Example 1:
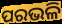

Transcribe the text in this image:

ପରଭଳି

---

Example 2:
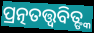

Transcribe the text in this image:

ପ୍ରତ୍ନତତ୍ତ୍ୱବିତ୍ଙ୍କ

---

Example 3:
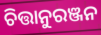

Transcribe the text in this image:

ଚିତ୍ତାନୁରଞ୍ଜନ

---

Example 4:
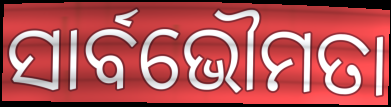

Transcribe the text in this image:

ସାର୍ବଭୌମତା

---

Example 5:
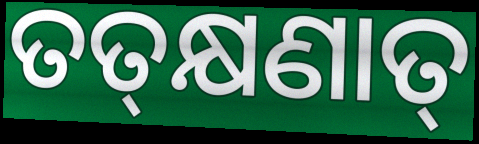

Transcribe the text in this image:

ତତ୍‍କ୍ଷଣାତ୍